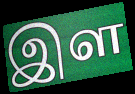
இள